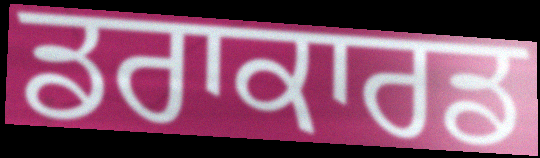
ਡਰਾਕਾਰਡ